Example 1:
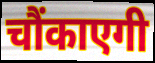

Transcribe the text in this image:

चौंकाएगी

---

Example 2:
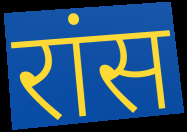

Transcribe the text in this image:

रांस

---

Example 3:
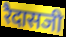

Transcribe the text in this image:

रैदासजी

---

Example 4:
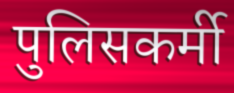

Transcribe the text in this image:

पुलिसकर्मी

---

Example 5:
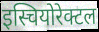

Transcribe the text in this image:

इस्चियोरेक्टल